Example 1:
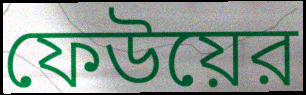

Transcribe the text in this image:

ফেউয়ের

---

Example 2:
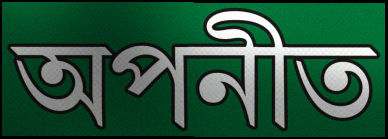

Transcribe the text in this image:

অপনীত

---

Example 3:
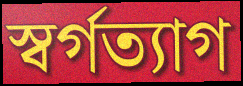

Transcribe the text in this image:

স্বর্গত্যাগ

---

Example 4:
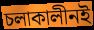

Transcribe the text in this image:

চলাকালীনই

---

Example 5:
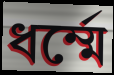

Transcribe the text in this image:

ধর্ম্মে